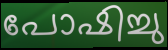
പോഷിച്ചു